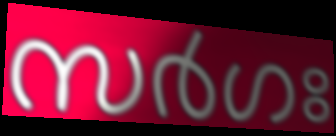
സർഗഃ